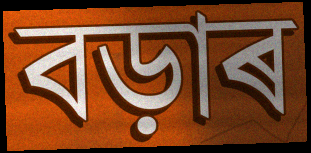
বড়াৰ